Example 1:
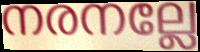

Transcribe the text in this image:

നരനല്ലേ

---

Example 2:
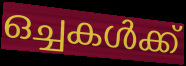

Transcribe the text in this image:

ഒച്ചകൾക്ക്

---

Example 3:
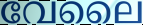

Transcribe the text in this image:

വേലൈ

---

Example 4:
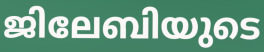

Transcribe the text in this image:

ജിലേബിയുടെ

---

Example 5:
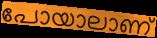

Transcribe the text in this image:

പോയാലാണ്